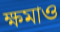
ক্ষমাও